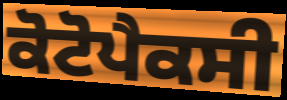
ਕੋਟੋਪੈਕਸੀ